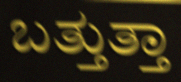
ಬತ್ತುತ್ತಾ